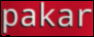
pakar